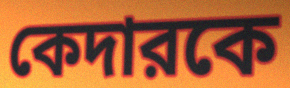
কেদারকে